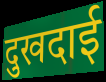
दुखदाई